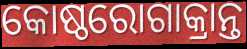
କୋଷ୍ଠରୋଗାକ୍ରାନ୍ତ